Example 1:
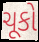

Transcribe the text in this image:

ચૂકો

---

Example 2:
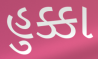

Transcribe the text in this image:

હુક્કા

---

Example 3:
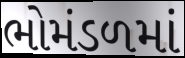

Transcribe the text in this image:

ભોમંડળમાં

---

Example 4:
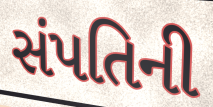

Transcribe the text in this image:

સંપતિની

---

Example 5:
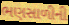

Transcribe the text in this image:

ભણસાળીની